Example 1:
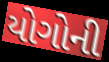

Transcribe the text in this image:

યોગોની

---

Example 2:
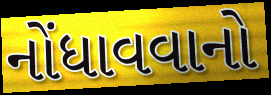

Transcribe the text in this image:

નોંધાવવાનો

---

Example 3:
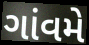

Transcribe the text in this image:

ગાંવમે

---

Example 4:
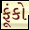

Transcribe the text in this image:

ફૂંકો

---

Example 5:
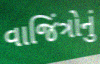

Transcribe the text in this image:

વાજિંત્રોનું